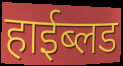
हाईब्लड